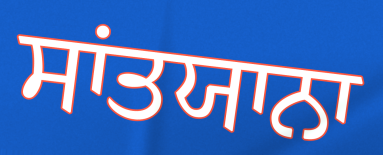
ਸਾਂਤਯਾਨਾ